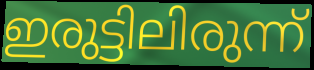
ഇരുട്ടിലിരുന്ന്